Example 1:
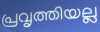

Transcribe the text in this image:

പ്രവൃത്തിയല്ല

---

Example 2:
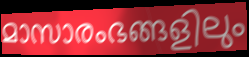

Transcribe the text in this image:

മാസാരംഭങ്ങളിലും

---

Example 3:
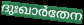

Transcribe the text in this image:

ദുഃഖാർതേന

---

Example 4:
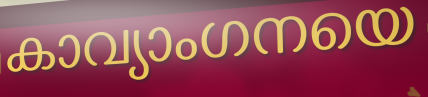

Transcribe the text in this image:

കാവ്യാംഗനയെ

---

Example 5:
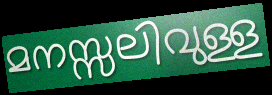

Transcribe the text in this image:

മനസ്സലിവുള്ള